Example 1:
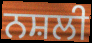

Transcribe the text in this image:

ਨਸ਼ਲੀ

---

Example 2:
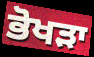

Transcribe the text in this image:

ਭੋਖੜਾ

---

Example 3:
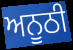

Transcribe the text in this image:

ਅਨੂਠੀ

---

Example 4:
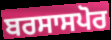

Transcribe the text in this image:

ਬਰਸਾਸਪੋਰ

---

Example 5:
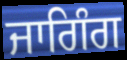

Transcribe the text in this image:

ਜਾਗਿੰਗ